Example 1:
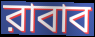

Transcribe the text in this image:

রাবাব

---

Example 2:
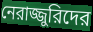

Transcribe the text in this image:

নেরাজ্জুরিদের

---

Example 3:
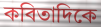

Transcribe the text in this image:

কবিতাদিকে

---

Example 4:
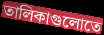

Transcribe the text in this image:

তালিকাগুলোতে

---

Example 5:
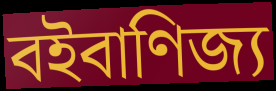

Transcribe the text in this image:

বইবাণিজ্য